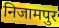
निजामपुर